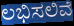
ಲಭಿಸಲಿವೆ